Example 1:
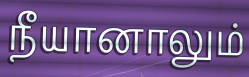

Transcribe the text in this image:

நீயானாலும்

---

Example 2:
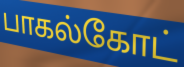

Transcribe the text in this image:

பாகல்கோட்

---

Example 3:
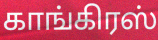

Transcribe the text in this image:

காங்கிரஸ்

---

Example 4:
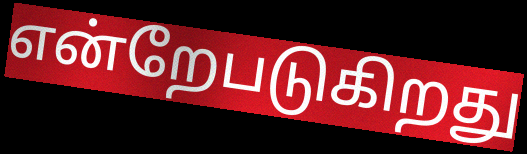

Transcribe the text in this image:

என்றேபடுகிறது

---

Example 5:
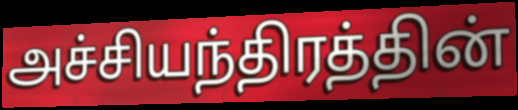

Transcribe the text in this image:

அச்சியந்திரத்தின்